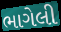
ભાગેલી